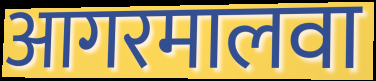
आगरमालवा